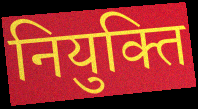
नियुक्‍ति